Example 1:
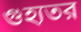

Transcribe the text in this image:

গুহ্যতর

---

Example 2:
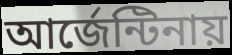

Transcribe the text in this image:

আর্জেন্টিনায়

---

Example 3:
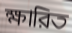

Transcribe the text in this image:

ক্ষারিত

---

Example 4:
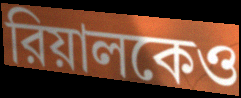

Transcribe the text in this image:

রিয়ালকেও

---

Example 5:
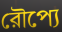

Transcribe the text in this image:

রৌপ্যে